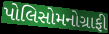
પોલિસોમનોગ્રાફી